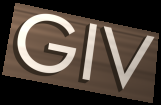
GIV